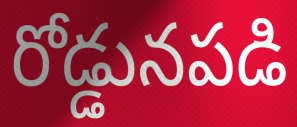
రోడ్డునపడి